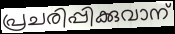
പ്രചരിപ്പിക്കുവാന്